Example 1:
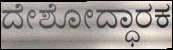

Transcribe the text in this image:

ದೇಶೋದ್ಧಾರಕ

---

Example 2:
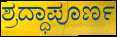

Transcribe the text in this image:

ಶ್ರದ್ಧಾಪೂರ್ಣ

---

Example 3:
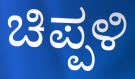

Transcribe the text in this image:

ಚಿಪ್ಪಳಿ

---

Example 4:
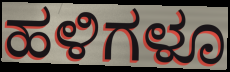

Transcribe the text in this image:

ಹಳಿಗಳೂ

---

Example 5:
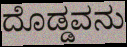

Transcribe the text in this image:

ದೊಡ್ಡವನು